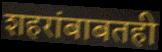
शहरांबाबतही